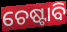
ଚେଷ୍ଟାବି